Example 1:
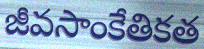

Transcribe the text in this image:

జీవసాంకేతికత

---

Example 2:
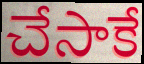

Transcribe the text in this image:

చేసాకే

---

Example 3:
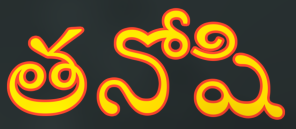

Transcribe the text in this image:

తనోషి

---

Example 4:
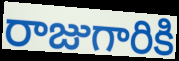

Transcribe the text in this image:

రాజుగారికి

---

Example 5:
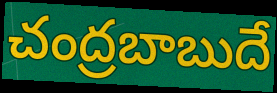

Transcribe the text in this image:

చంద్రబాబుదే